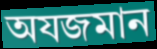
অযজমান